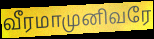
வீரமாமுனிவரே